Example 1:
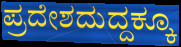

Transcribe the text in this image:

ಪ್ರದೇಶದುದ್ದಕ್ಕೂ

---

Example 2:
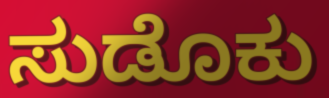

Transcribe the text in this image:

ಸುಡೊಕು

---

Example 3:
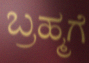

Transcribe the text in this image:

ಬ್ರಹ್ಮಗೆ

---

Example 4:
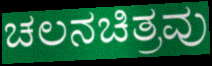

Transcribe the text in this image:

ಚಲನಚಿತ್ರವು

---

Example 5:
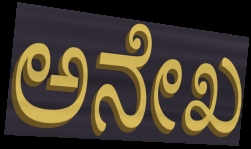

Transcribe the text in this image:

ಅನೇಖ